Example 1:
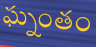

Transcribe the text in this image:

ఘ్నంతం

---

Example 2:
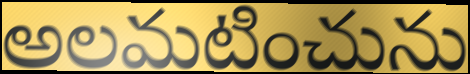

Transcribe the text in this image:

అలమటించును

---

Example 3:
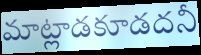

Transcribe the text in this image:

మాట్లాడకూడదనీ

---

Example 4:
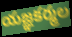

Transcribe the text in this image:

యజ్ఞకర్మల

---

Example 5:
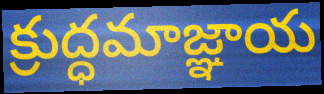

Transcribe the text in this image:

క్రుద్ధమాజ్ఞాయ